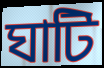
ঘাটি